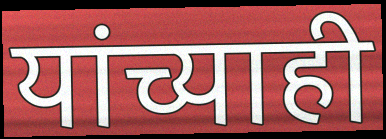
यांच्याही